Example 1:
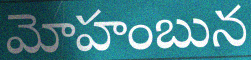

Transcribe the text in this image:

మోహంబున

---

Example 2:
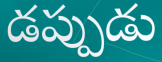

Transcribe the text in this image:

డప్పుడు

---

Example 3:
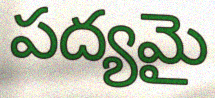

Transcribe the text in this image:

పద్యమై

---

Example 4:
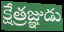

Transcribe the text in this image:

క్షేత్రజ్ఞుడు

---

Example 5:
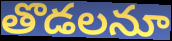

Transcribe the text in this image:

తొడలనూ